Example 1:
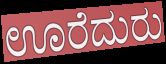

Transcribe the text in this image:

ಊರೆದುರು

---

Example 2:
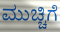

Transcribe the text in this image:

ಮುಚ್ಚಿಗೆ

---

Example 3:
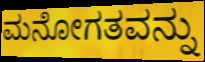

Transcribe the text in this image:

ಮನೋಗತವನ್ನು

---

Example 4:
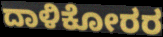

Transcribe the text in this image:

ದಾಳಿಕೋರರ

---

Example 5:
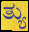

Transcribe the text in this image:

ತ್ಯು